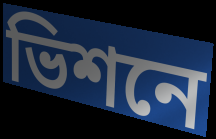
ভিশনে